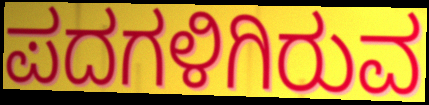
ಪದಗಳಿಗಿರುವ